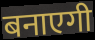
बनाएगी